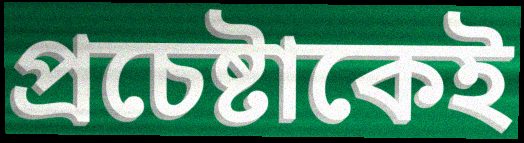
প্রচেষ্টাকেই